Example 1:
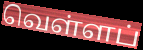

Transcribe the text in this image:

வெள்ளப்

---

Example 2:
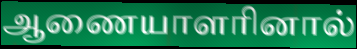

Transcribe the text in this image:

ஆணையாளரினால்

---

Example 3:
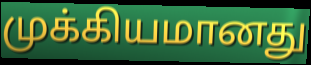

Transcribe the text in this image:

முக்கியமானது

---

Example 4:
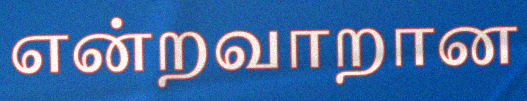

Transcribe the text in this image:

என்றவாறான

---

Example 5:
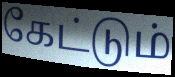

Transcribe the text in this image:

கேட்டும்